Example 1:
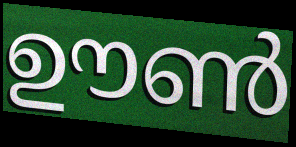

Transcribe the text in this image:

ഊൺ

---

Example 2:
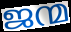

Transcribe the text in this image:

ജന്മ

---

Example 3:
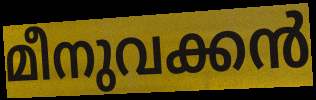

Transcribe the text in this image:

മീനുവക്കൻ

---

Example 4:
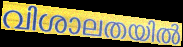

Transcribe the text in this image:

വിശാലതയിൽ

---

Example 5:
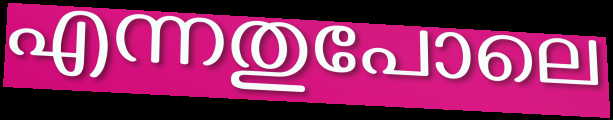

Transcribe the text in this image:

എന്നതുപോലെ